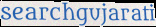
searchgujarati